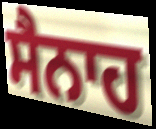
ਸੈਨਾਹ